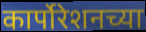
कार्पोरेशनच्या